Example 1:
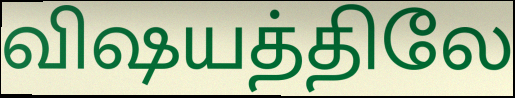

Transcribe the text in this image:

விஷயத்திலே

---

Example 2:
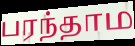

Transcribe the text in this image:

பரந்தாம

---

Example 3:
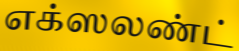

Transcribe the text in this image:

எக்ஸலண்ட்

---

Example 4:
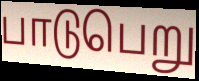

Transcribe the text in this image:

பாடுபெறு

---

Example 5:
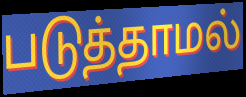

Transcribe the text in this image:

படுத்தாமல்